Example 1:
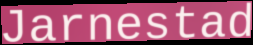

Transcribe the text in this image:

Jarnestad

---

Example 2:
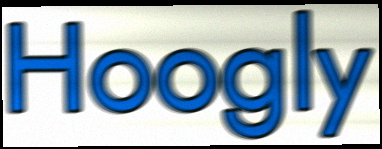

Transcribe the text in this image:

Hoogly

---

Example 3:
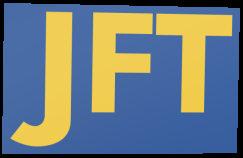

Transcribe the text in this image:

JFT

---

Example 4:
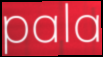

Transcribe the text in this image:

pala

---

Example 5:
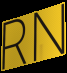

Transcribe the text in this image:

RN